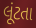
લૂંટતા